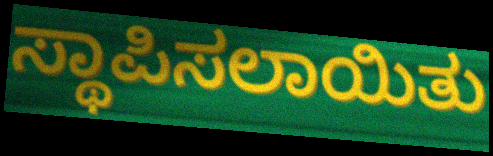
ಸ್ಥಾಪಿಸಲಾಯಿತು